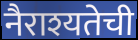
नैराश्यतेची